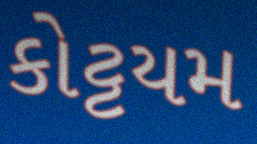
કોટ્ટયમ